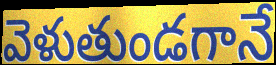
వెళుతుండగానే